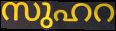
സുഹറ